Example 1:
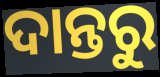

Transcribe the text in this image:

ଦାନ୍ତରୁ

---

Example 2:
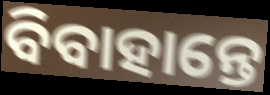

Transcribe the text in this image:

ବିବାହାନ୍ତେ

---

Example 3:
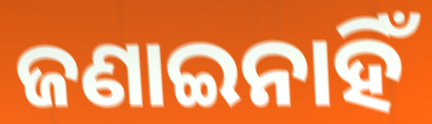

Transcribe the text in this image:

ଜଣାଇନାହିଁ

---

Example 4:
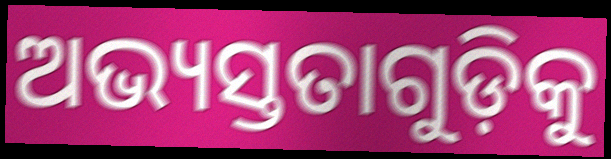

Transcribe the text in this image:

ଅଭ୍ୟସ୍ତତାଗୁଡ଼ିକୁ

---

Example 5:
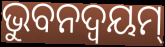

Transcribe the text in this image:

ଭୁବନଦ୍ଵୟମ୍